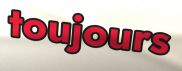
toujours